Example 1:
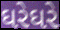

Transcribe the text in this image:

ઘરેઘરે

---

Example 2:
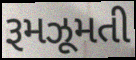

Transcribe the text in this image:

રૂમઝૂમતી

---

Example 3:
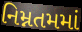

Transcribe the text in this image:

નિમ્નતમમાં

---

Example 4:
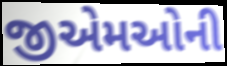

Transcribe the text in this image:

જીએમઓની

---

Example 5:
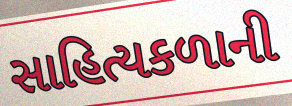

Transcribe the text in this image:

સાહિત્યકળાની